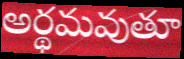
అర్థమవుతూ